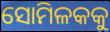
ସୋମିଳକକୁ